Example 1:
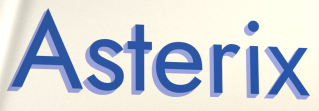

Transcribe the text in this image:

Asterix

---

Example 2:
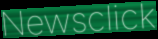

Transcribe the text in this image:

Newsclick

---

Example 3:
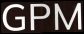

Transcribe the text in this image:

GPM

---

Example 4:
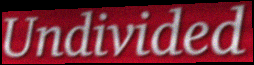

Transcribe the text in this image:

Undivided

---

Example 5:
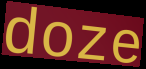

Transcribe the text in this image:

doze